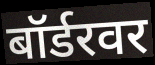
बॉर्डरवर